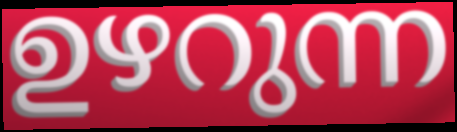
ഉഴറുന്ന